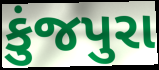
કુંજપુરા